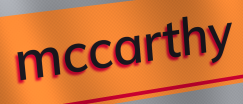
mccarthy